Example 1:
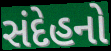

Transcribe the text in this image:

સંદેહનો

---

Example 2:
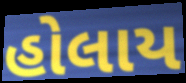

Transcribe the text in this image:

હોલાય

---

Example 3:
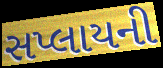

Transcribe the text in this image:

સપ્લાયની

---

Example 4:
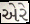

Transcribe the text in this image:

એરે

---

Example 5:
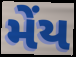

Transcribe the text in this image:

મેંય